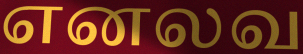
எனலவ